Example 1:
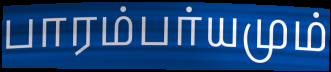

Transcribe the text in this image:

பாரம்பர்யமும்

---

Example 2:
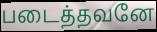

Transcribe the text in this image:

படைத்தவனே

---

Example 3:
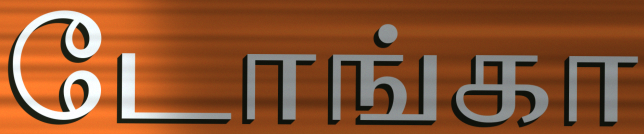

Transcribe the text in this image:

டோங்கா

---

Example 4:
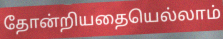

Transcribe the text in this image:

தோன்றியதையெல்லாம்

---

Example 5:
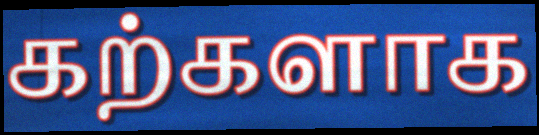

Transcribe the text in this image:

கற்களாக